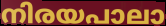
നിരയപാലാ